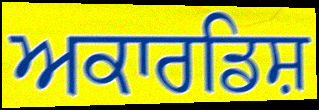
ਅਕਾਰਡਿਸ਼